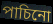
পাচিনো